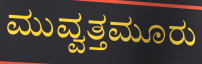
ಮುವ್ವತ್ತಮೂರು